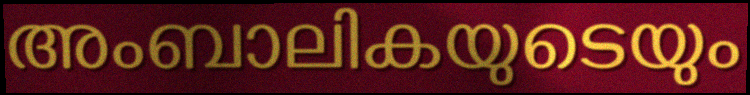
അംബാലികയുടെയും